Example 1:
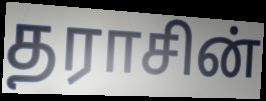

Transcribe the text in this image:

தராசின்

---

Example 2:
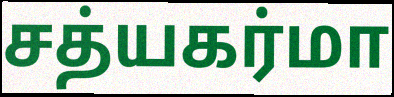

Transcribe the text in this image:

சத்யகர்மா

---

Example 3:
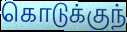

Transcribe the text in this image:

கொடுக்குந்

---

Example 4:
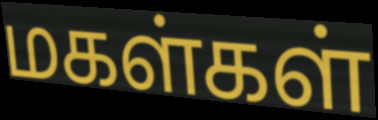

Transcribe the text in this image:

மகள்கள்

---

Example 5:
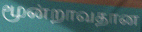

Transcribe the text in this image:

மூன்றாவதான